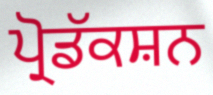
ਪ੍ਰੋਡੱਕਸ਼ਨ